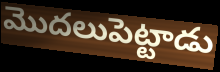
మొదలుపెట్టాడు